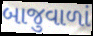
બાજુવાળાં